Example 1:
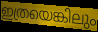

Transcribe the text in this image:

ഇത്രയെങ്കിലും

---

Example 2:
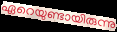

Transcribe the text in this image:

ഏറെയുണ്ടായിരുന്നു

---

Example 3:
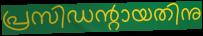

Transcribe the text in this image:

പ്രസിഡന്റായതിനു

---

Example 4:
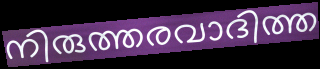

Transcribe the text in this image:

നിരുത്തരവാദിത്ത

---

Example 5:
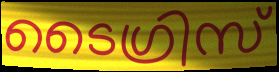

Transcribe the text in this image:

ടൈഗ്രിസ്